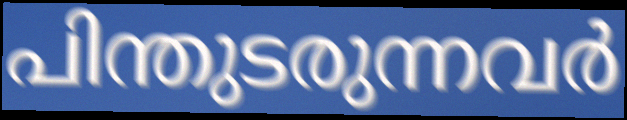
പിന്തുടരുന്നവർ